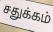
சதுக்கம்